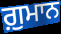
ਗ਼ੁਮਾਨ